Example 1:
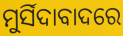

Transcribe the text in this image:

ମୁର୍ସିଦାବାଦରେ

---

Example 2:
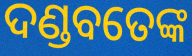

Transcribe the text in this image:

ଦଣ୍ଡବତେଙ୍କ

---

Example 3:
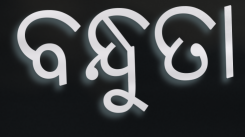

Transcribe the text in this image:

ବନ୍ଧୁତା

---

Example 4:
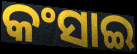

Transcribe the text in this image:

କଂସାଇ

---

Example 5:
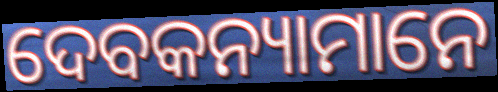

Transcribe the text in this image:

ଦେବକନ୍ୟାମାନେ